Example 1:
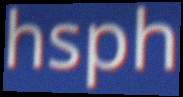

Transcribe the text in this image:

hsph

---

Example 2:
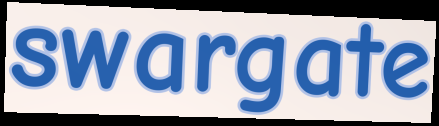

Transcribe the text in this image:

swargate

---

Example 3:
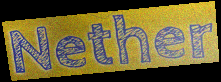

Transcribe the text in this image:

Nether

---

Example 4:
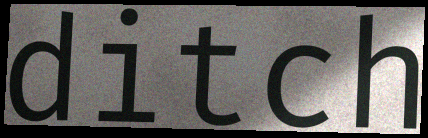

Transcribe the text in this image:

ditch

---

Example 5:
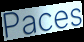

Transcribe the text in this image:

Paces